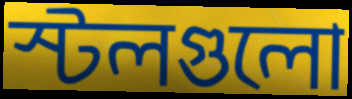
স্টলগুলো